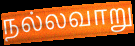
நல்லவாறு